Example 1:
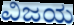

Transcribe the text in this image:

ವಿಜಯ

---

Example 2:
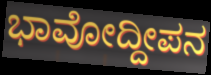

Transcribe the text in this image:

ಭಾವೋದ್ದೀಪನ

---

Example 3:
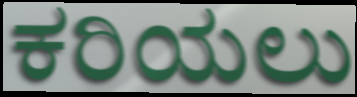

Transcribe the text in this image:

ಕರಿಯಲು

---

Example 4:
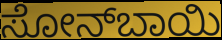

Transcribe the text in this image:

ಸೋನ್‍ಬಾಯಿ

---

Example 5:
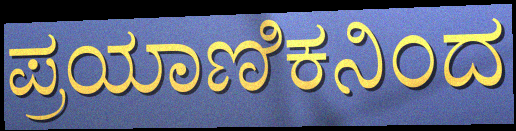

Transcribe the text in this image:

ಪ್ರಯಾಣಿಕನಿಂದ